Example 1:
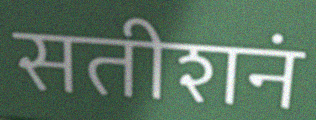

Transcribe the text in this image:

सतीशनं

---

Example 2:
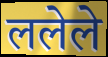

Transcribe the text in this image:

ललेले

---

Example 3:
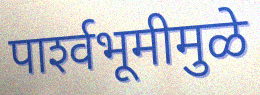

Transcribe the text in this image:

पार्श्‍वभूमीमुळे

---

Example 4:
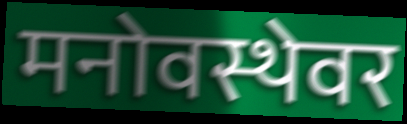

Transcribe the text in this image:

मनोवस्थेवर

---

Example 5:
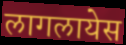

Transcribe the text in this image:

लागलायेस